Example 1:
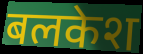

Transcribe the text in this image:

बलकेश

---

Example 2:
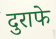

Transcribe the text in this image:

दुराफे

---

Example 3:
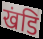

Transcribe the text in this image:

खंडि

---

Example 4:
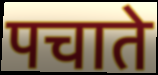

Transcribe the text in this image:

पचाते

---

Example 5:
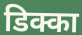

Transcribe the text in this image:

डिक्का